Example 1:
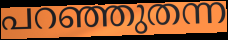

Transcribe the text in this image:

പറഞ്ഞുതന്ന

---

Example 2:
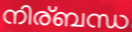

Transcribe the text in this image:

നിര്ബന്ധ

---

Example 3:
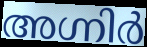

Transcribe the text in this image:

അഗ്നിർ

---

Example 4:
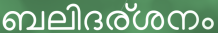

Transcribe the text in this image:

ബലിദര്ശനം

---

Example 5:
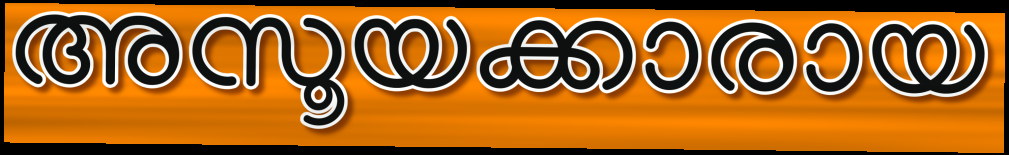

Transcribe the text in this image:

അസൂയക്കാരായ